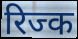
रिज्क